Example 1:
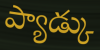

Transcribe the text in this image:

ప్యాడ్కు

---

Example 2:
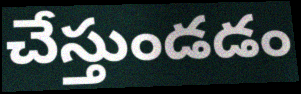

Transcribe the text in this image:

చేస్తుండడం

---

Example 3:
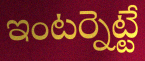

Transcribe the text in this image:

ఇంటర్నెట్టే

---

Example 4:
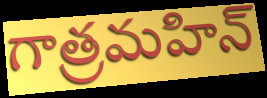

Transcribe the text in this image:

గాత్రమహిన్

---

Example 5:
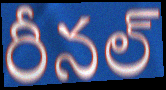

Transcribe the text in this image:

రీనల్